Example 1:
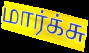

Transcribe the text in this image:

மார்க்சு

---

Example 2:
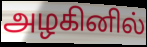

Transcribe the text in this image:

அழகினில்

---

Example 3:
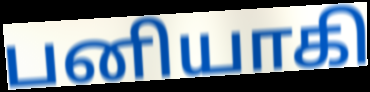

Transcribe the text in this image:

பனியாகி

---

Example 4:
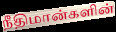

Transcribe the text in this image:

நீதிமான்களின்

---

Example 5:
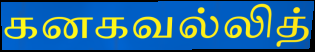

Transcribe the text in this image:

கனகவல்லித்